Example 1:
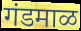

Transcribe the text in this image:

गंडमाळ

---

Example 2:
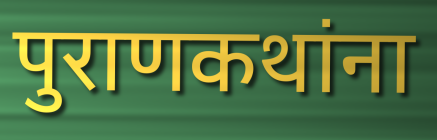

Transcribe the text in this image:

पुराणकथांना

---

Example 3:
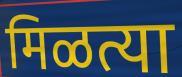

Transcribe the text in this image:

मिळत्या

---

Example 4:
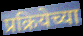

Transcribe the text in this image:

प्रक्रियेच्या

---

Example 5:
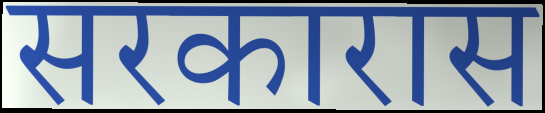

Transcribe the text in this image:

सरकारास